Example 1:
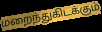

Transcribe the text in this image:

மறைந்துகிடக்கும்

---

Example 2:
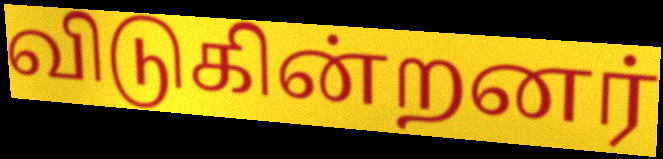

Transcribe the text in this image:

விடுகின்றனர்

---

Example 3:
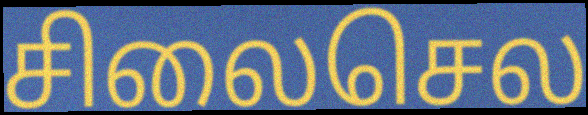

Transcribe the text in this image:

சிலைசெல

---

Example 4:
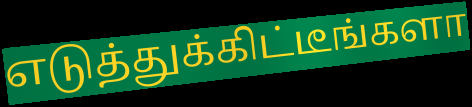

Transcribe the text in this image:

எடுத்துக்கிட்டீங்களா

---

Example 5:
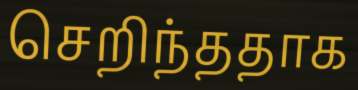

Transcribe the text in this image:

செறிந்ததாக